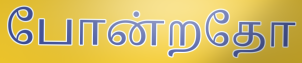
போன்றதோ